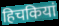
हिचकियां